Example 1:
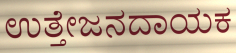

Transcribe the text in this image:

ಉತ್ತೇಜನದಾಯಕ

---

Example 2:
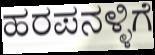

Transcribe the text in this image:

ಹರಪನಳ್ಳಿಗೆ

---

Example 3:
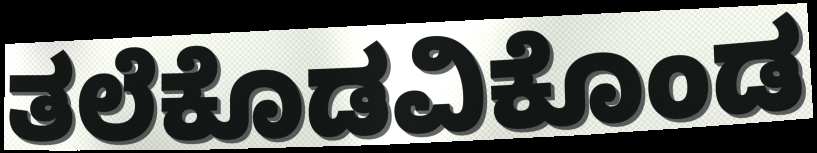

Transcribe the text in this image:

ತಲೆಕೊಡವಿಕೊಂಡ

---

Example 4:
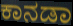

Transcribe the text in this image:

ಕಾನಡಾ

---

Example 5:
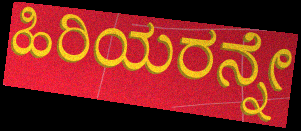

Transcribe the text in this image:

ಹಿರಿಯರನ್ನೇ